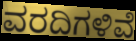
ವರದಿಗಳಿವೆ